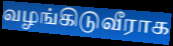
வழங்கிடுவீராக